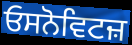
ਓਸਨੋਵਿਟਜ਼